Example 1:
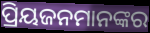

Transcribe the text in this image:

ପ୍ରିୟଜନମାନଙ୍କର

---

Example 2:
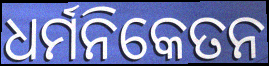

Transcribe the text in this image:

ଧର୍ମନିକେତନ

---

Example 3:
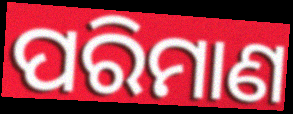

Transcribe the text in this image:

ପରିମାଣ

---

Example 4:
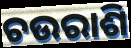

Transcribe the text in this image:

ଚଉରାଶି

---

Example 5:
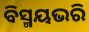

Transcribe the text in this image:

ବିସ୍ମୟଭରି